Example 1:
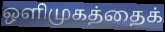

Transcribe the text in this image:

ஒளிமுகத்தைக்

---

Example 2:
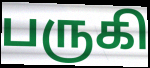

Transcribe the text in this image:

பருகி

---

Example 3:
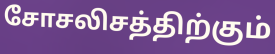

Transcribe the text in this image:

சோசலிசத்திற்கும்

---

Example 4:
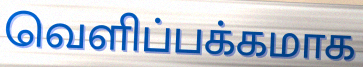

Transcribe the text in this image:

வெளிப்பக்கமாக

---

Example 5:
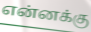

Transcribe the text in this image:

என்னக்கு